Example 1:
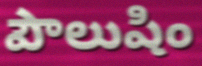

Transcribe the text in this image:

పౌలుషిం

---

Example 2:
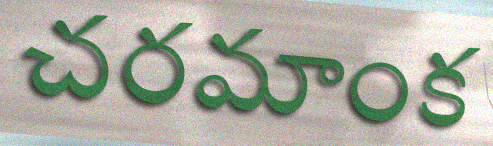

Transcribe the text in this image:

చరమాంక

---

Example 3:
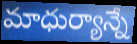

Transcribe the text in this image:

మాధుర్యాన్నే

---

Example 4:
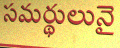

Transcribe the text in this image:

సమర్థులునై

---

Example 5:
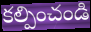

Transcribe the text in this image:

కల్పించండి